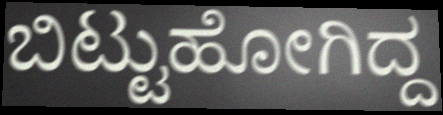
ಬಿಟ್ಟುಹೋಗಿದ್ದ